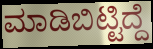
ಮಾಡಿಬಿಟ್ಟಿದ್ದೆ